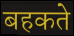
बहकते